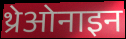
थ्रेओनाइन